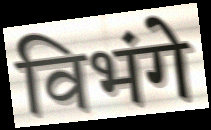
विभंगे